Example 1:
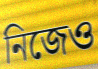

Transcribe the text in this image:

নিজেও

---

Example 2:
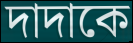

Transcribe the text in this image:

দাদাকে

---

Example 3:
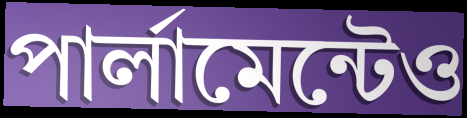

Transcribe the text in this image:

পার্লামেন্টেও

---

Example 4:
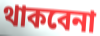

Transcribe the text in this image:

থাকবেনা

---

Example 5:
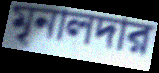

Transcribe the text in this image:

মৃনালদার